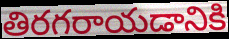
తిరగరాయడానికి